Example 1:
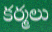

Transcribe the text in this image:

కర్మలు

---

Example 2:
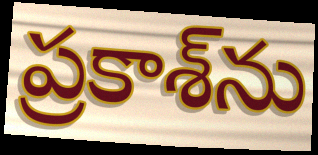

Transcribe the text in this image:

ప్రకాశ్‌ను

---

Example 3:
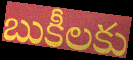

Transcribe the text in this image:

బుకీలకు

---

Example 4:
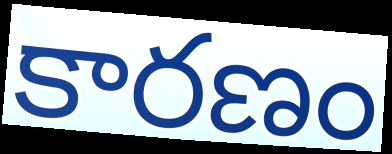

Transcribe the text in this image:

కారణం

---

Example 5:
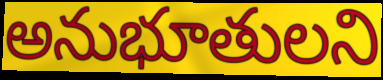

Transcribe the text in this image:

అనుభూతులని